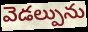
వెడల్పును